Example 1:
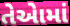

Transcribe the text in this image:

તેએામાં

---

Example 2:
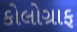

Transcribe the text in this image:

કોલોગ્રાફ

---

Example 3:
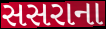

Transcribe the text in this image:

સસરાના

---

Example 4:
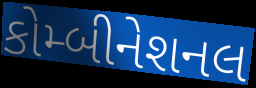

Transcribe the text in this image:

કોમ્બીનેશનલ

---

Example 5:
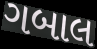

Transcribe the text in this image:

ગબાલ